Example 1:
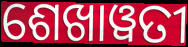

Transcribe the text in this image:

ଶେଖାୱତୀ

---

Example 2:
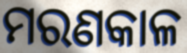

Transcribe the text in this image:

ମରଣକାଳ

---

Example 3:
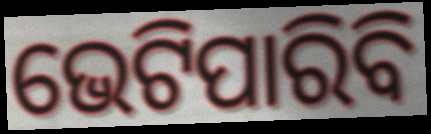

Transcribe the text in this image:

ଭେଟିପାରିବି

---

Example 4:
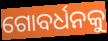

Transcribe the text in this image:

ଗୋବର୍ଧନକୁ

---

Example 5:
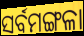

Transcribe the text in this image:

ସର୍ବମଙ୍ଗଳା